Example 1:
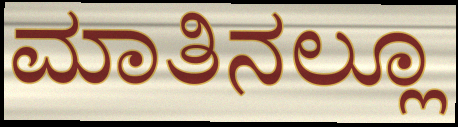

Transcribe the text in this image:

ಮಾತಿನಲ್ಲೂ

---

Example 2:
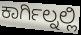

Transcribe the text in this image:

ಕಾರ್ಗಿಲ್ನಲ್ಲಿ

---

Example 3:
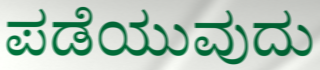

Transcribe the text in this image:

ಪಡೆಯುವುದು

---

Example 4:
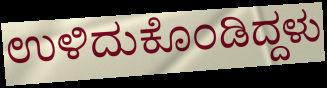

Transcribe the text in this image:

ಉಳಿದುಕೊಂಡಿದ್ದಳು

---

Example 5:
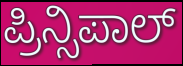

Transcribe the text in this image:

ಪ್ರಿನ್ಸಿಪಾಲ್